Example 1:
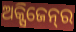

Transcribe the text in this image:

ଅକ୍ସିଜେନ୍‌ର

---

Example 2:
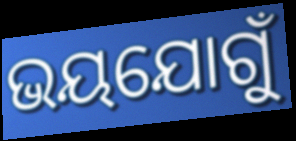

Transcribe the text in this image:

ଭୟଯୋଗୁଁ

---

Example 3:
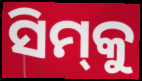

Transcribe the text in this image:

ସିମ୍‌କୁ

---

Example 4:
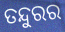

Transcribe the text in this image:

ତନ୍ଦୁରର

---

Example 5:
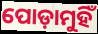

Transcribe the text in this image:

ପୋଡ଼ାମୁହିଁ